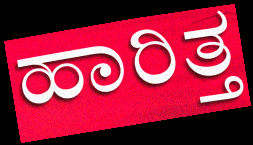
ಹಾರಿತ್ತ